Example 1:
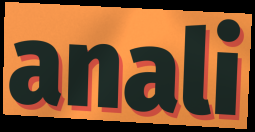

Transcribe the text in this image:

anali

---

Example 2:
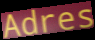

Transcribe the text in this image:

Adres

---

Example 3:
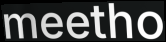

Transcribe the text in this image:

meetho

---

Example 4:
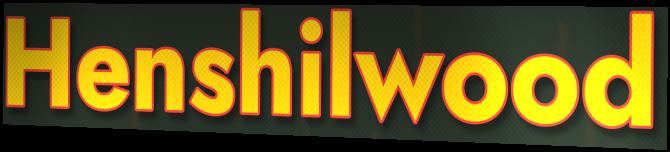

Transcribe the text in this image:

Henshilwood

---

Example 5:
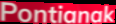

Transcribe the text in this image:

Pontianak